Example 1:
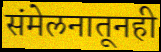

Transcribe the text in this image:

संमेलनातूनही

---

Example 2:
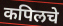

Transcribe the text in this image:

कपिलचे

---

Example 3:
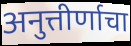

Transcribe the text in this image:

अनुत्तीर्णाचा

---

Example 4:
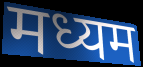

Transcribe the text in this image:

मध्यम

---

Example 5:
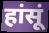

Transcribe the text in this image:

हांसूं